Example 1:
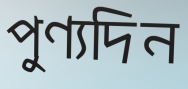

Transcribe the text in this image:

পুণ্যদিন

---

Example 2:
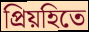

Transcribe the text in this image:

প্রিয়হিতে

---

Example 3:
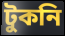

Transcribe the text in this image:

টুকনি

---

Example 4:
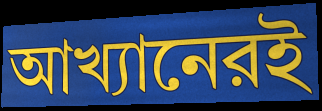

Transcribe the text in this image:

আখ্যানেরই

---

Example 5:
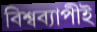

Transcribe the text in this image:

বিশ্বব্যাপীই